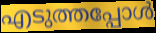
എടുത്തപ്പോൾ